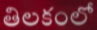
తిలకంలో